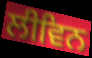
ਲੀਵਿਨ